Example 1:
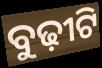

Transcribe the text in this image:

ବୁଢ଼ୀଟି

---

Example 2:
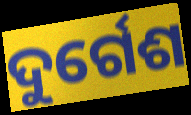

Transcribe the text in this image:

ଦୁର୍ଗେଶ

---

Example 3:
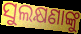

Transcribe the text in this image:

ସୁଲକ୍ଷଣାଙ୍କୁ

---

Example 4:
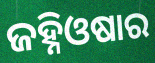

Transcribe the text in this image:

ଜହ୍ନିଓଷାର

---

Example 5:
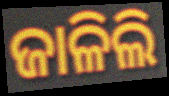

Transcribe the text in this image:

ଜାଳିଲି